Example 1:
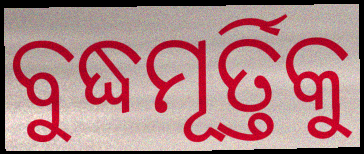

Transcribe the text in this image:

ବୁଦ୍ଧମୂର୍ତ୍ତିକୁ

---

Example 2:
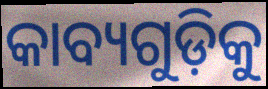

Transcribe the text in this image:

କାବ୍ୟଗୁଡ଼ିକୁ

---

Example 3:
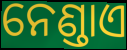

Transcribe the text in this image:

ନେଣ୍ଡାଏ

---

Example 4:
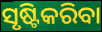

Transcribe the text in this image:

ସୃଷ୍ଟିକରିବା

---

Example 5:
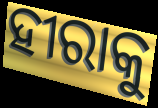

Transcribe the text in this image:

ହୀରାକୁ